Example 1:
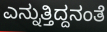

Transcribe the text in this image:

ಎನ್ನುತ್ತಿದ್ದನಂತೆ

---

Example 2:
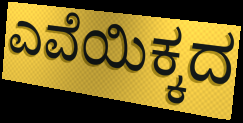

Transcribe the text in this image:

ಎವೆಯಿಕ್ಕದ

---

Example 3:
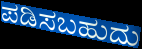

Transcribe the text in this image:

ಪಡಿಸಬಹುದು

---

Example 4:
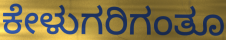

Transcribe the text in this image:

ಕೇಳುಗರಿಗಂತೂ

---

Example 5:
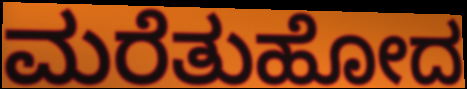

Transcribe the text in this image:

ಮರೆತುಹೋದ